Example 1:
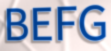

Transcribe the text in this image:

BEFG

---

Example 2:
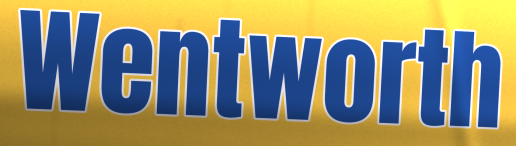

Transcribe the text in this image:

Wentworth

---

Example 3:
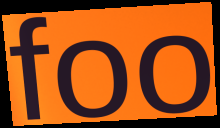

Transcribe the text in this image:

foo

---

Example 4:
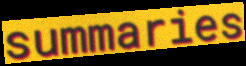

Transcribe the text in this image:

summaries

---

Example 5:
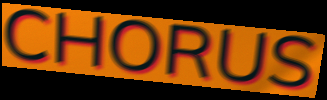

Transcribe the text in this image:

CHORUS